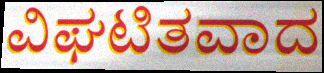
ವಿಘಟಿತವಾದ